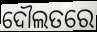
ଦୌଲତରେ